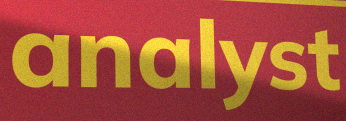
analyst